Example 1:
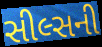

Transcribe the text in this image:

સીલ્સની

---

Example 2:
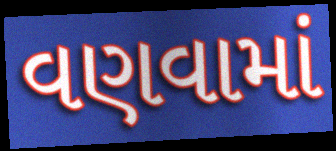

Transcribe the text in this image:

વણવામાં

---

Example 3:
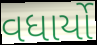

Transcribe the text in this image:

વધાર્યો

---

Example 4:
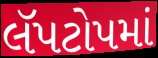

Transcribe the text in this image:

લૅપટોપમાં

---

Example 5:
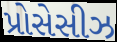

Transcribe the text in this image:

પ્રોસેસીઝ